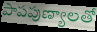
పాపపుణ్యాలతో